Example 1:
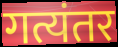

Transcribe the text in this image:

गत्यंतर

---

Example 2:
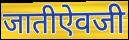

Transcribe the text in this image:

जातीऐवजी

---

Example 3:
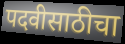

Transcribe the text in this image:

पदवीसाठीचा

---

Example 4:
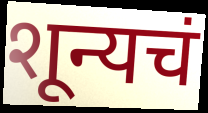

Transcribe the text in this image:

शून्यचं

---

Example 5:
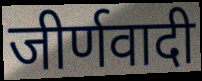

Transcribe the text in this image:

जीर्णवादी